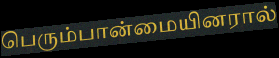
பெரும்பான்மையினரால்